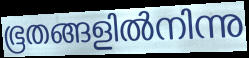
ഭൂതങ്ങളിൽനിന്നു